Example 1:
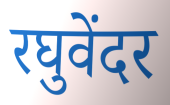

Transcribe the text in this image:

रघुवेंदर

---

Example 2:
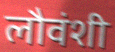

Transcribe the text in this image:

लौवंशी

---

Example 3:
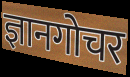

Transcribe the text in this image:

ज्ञानगोचर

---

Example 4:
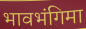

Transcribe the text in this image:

भावभंगिमा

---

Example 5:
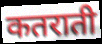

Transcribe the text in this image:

कतराती